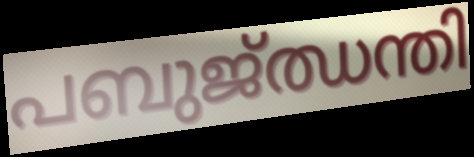
പബുജ്ഝന്തി